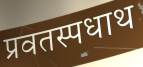
प्रवतस्पधाथ